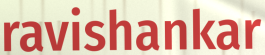
ravishankar